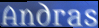
Andras